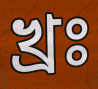
খ্রঃ